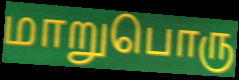
மாறுபொரு